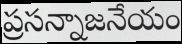
ప్రసన్నాజనేయం